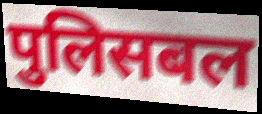
पुलिसबल